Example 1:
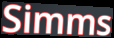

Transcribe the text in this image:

Simms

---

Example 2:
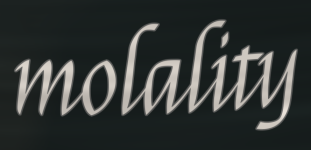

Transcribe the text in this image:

molality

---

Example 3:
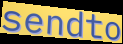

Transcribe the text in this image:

sendto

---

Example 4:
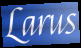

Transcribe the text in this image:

Larus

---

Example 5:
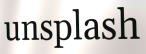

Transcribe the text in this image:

unsplash